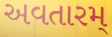
અવતારમ્